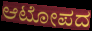
ಆಟೋಪದ